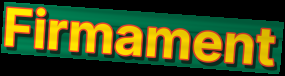
Firmament